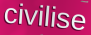
civilise